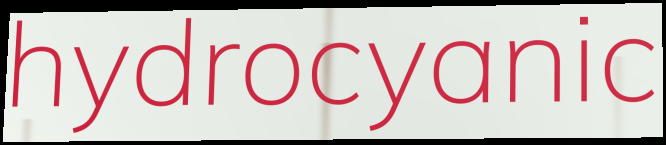
hydrocyanic